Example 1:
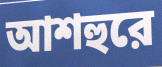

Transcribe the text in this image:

আশহুরে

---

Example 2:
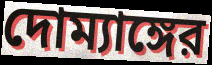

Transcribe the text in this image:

দোম্যাঙ্গের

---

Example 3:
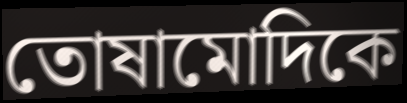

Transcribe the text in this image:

তোষামোদিকে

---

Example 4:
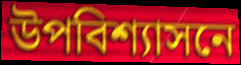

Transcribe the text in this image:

উপবিশ্যাসনে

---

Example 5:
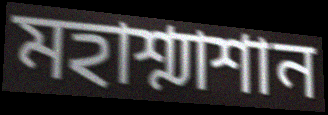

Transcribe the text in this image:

মহাশ্মাশান